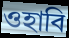
ওহাবি